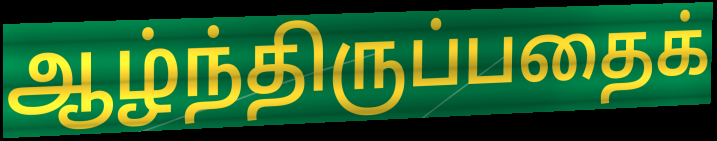
ஆழ்ந்திருப்பதைக்